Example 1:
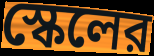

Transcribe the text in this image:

স্কেলের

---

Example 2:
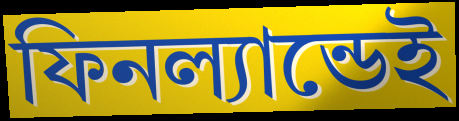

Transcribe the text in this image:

ফিনল্যান্ডেই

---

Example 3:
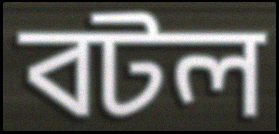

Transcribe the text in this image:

বটল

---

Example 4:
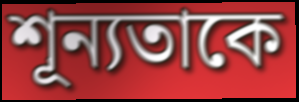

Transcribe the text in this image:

শূন্যতাকে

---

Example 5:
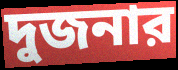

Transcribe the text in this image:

দুজনার